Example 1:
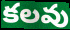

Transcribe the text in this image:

కలవు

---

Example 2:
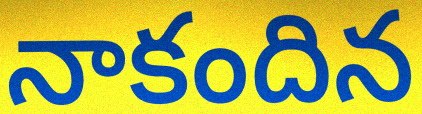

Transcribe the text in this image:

నాకందిన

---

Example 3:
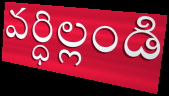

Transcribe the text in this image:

వర్ధిల్లండి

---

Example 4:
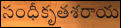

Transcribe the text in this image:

సంధీకృతశరాయ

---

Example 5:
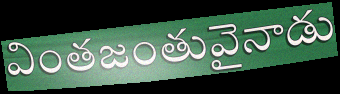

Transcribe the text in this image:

వింతజంతువైనాడు